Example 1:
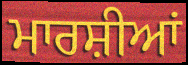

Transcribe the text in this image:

ਮਾਰਸ਼ੀਆਂ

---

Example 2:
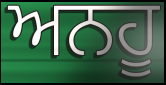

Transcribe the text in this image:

ਅਨਹੂ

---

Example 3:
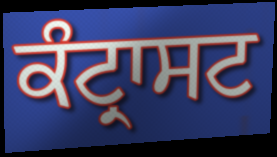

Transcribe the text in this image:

ਕੰਟ੍ਰਾਸਟ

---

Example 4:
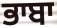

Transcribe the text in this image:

ਭਾਬਾ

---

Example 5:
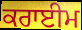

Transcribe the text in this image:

ਕਰਾਈਮ